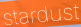
stardust